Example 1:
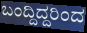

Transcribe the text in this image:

ಬಂದ್ದಿದ್ದರಿಂದ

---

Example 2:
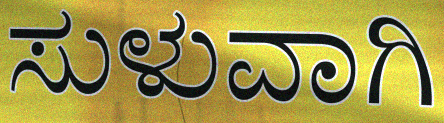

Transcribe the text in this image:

ಸುಳುವಾಗಿ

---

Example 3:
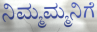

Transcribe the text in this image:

ನಿಮ್ಮಮ್ಮನಿಗೆ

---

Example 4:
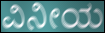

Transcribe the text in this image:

ವಿನೀಯ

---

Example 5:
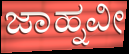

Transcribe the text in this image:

ಜಾಹ್ನವೀ